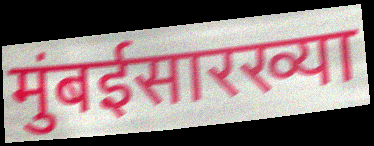
मुंबईसारख्या